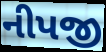
નીપજી